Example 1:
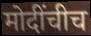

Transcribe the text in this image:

मोदींचीच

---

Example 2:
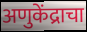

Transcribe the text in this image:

अणुकेंद्राचा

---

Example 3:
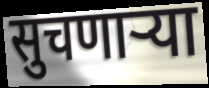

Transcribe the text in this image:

सुचणाऱ्या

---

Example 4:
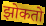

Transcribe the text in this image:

झोकतो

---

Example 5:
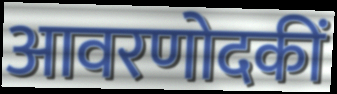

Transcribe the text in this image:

आवरणोदकीं